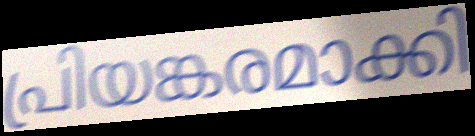
പ്രിയങ്കരമാക്കി